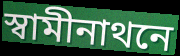
স্বামীনাথনে